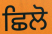
ਛਿਲੋ